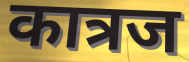
कात्रज